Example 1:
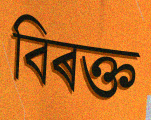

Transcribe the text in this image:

বিৰক্ত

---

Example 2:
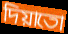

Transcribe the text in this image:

দিয়াতো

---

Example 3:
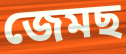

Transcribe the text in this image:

জেমছ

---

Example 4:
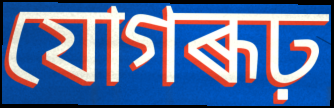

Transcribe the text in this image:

যোগৰূঢ়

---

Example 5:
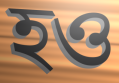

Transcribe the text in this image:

হও